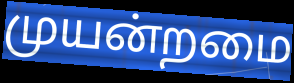
முயன்றமை